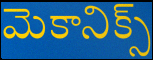
మెకానిక్స్